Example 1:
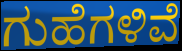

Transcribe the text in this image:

ಗುಹೆಗಳಿವೆ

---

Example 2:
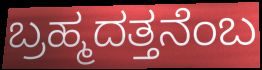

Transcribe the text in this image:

ಬ್ರಹ್ಮದತ್ತನೆಂಬ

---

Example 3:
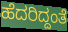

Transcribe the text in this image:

ಹೆದರಿದ್ದಂತೆ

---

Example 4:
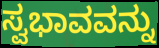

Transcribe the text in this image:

ಸ್ವಭಾವವನ್ನು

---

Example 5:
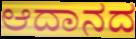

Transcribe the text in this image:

ಆದಾನದ